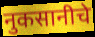
नुकसानीचे